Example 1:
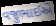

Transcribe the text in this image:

વજુભાઈએ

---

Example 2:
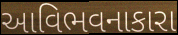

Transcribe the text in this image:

આવિભવનાકારા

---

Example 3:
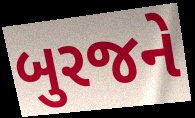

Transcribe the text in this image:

બુરજને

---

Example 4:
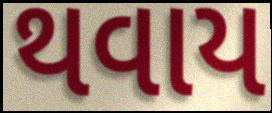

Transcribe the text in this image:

થવાય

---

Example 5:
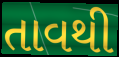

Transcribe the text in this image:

તાવથી